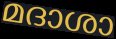
മദാശാ